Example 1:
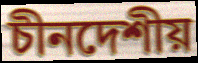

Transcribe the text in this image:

চীনদেশীয়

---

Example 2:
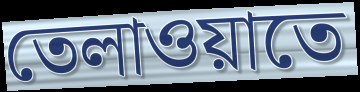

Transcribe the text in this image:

তেলাওয়াতে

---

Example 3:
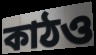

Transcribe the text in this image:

কাঠও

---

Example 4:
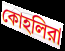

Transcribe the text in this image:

কোহলিরা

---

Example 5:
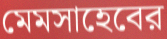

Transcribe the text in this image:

মেমসাহেবের